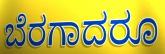
ಬೆರಗಾದರೂ